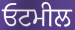
ਓਟਮੀਲ